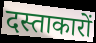
दस्ताकारों